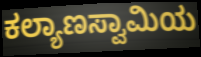
ಕಲ್ಯಾಣಸ್ವಾಮಿಯ